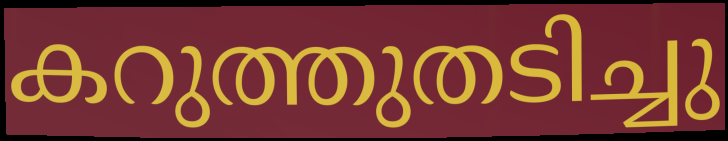
കറുത്തുതടിച്ചു